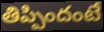
తిప్పిందంటే